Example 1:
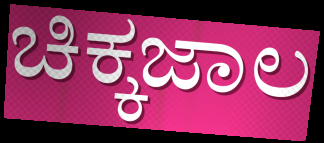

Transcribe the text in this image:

ಚಿಕ್ಕಜಾಲ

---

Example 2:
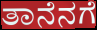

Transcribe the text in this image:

ತಾನೆನಗೆ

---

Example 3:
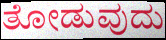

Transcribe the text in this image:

ತೋಡುವುದು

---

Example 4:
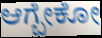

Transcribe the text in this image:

ಆಗ್ಬೇಕೋ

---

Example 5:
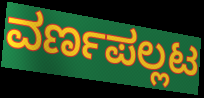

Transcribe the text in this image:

ವರ್ಣಪಲ್ಲಟ